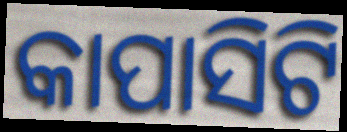
କାପାସିଟି